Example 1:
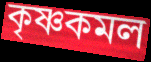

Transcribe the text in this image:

কৃষ্ণকমল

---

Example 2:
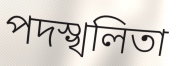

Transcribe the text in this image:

পদস্খলিতা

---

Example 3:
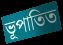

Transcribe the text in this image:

ভূপাতিত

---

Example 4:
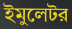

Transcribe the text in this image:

ইমুলেটর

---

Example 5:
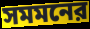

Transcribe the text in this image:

সমমনের